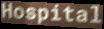
Hospital